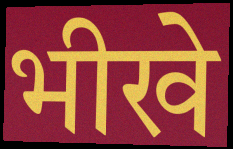
भीखे